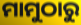
ମାମୁଠାରୁ